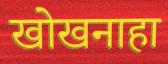
खोखनाहा